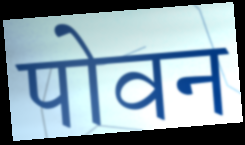
पोवन